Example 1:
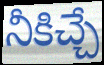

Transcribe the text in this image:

నీకిచ్చే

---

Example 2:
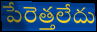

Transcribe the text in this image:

పేరెత్తలేదు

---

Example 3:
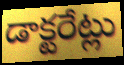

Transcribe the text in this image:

డాక్టరేట్లు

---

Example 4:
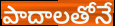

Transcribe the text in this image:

పాదాలతోనే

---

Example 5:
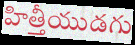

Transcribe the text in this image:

హిత్తీయుడగు